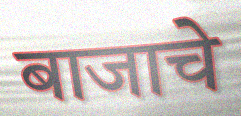
बाजाचे